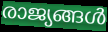
രാജ്യങ്ങൾ